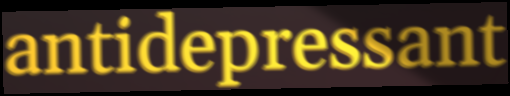
antidepressant